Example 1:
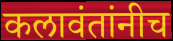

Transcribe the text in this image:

कलावंतांनीच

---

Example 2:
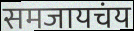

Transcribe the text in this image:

समजायचंय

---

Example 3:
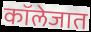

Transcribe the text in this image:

कॉलेजात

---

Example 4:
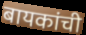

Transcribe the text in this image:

बायकांची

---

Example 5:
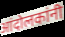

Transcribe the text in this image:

आंदोलकांनी